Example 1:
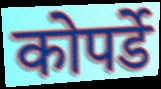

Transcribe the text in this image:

कोपर्डे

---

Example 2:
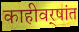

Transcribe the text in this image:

काहीवर्षांत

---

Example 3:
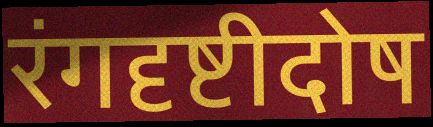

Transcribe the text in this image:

रंगदृष्टीदोष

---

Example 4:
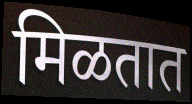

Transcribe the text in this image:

मिळतात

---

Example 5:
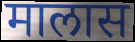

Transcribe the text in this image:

मालास